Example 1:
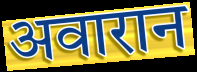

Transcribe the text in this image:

अवारान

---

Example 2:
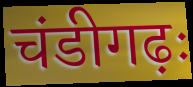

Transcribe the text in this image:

चंडीगढ़ः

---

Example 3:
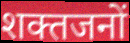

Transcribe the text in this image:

शक्तजनों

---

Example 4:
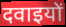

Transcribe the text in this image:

दवाइयों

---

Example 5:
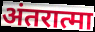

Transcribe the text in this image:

अंतरात्मा